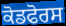
ਕੋਡਫੋਰਸ